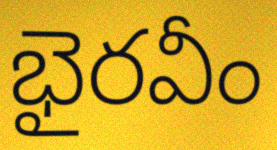
భైరవీం